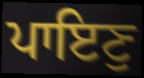
ਪਾਇਣੁ